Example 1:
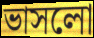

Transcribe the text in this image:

ভাসলো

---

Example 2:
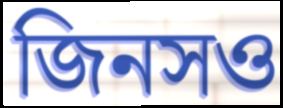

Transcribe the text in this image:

জিনসও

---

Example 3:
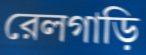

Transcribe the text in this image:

রেলগাড়ি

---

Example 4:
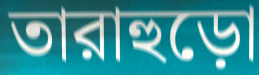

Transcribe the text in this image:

তারাহুড়ো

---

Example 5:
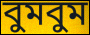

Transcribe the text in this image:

বুমবুম